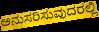
ಅನುಸರಿಸುವುದರಲ್ಲಿ